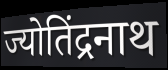
ज्योतिंद्रनाथ